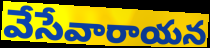
వేసేవారాయన